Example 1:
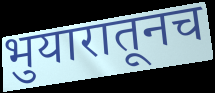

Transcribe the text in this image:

भुयारातूनच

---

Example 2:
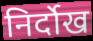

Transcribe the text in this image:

निर्दोख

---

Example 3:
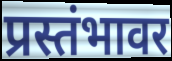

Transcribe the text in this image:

प्रस्तंभावर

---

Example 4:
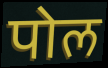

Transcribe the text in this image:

पोल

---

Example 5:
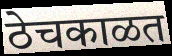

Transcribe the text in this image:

ठेचकाळत